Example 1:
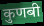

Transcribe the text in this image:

कुणबी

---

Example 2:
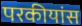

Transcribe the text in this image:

परकीयांस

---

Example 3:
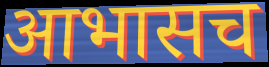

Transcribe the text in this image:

आभासच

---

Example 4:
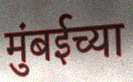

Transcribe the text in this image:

मुंबईच्या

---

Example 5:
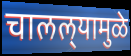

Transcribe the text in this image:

चालल्यामुळे